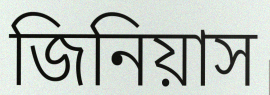
জিনিয়াস